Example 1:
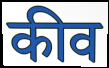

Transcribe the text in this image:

कीव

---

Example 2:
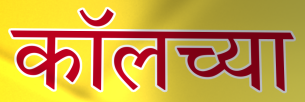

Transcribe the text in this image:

कॉलच्या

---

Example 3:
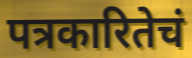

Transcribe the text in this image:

पत्रकारितेचं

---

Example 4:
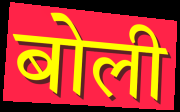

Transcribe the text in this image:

बोली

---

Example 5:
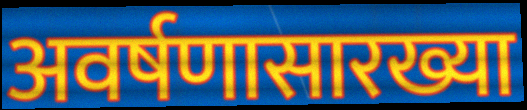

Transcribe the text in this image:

अवर्षणासारख्या